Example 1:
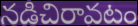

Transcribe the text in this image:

నడిచిరావటం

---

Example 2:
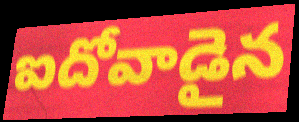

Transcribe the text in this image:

ఐదోవాడైన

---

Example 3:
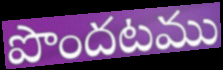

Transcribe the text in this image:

పొందటము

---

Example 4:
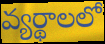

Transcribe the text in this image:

వ్యర్థాలలో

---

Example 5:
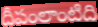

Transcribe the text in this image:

దీపంలాంటిది